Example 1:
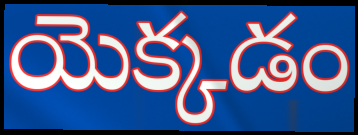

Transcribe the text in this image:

యెక్కడం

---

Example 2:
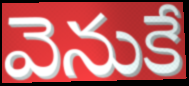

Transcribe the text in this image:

వెనుకే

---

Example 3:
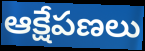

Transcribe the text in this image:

ఆక్షేపణలు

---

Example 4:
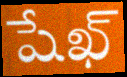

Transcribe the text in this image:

షేఖ్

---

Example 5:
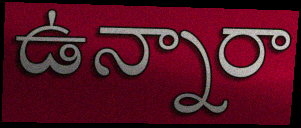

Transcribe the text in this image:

ఉన్నారా